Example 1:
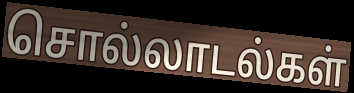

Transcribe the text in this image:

சொல்லாடல்கள்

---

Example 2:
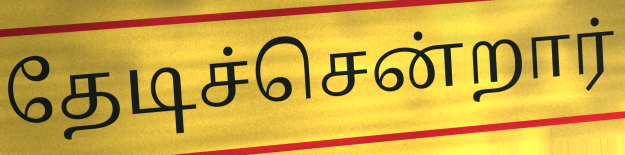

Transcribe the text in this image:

தேடிச்சென்றார்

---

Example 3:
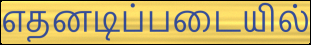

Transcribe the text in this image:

எதனடிப்படையில்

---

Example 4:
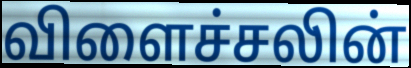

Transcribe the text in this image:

விளைச்சலின்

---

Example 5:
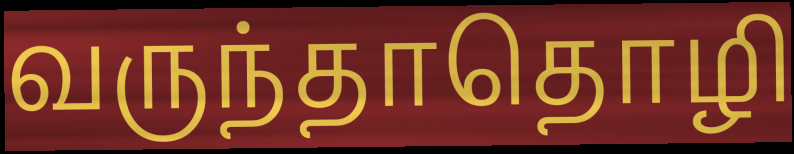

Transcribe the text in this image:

வருந்தாதொழி